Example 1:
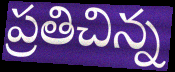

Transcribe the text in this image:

ప్రతిచిన్న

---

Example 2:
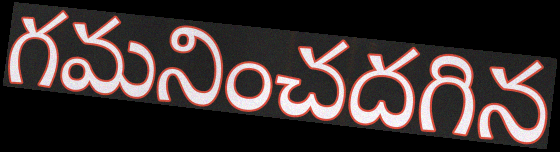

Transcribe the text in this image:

గమనించదగిన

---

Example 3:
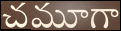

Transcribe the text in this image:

చమూగా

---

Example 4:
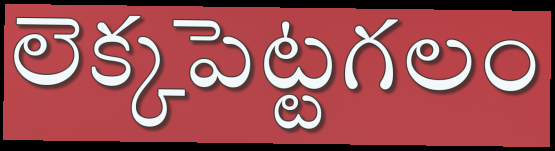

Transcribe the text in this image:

లెక్కపెట్టగలం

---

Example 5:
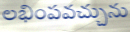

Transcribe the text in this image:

లభింపవచ్చును